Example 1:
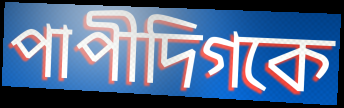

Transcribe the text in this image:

পাপীদিগকে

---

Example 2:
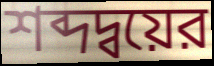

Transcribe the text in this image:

শব্দদ্বয়ের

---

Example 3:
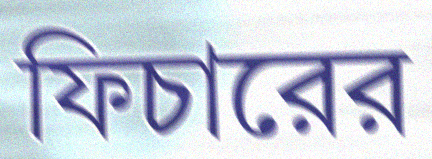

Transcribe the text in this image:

ফিচারের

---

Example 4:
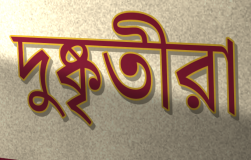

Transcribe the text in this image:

দুষ্কৃতীরা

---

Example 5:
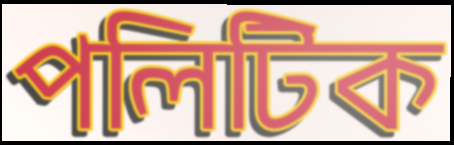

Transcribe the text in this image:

পলিটিক